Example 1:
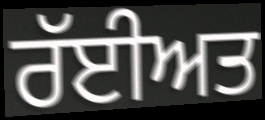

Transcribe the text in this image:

ਰੱਈਅਤ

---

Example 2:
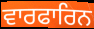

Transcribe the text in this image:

ਵਾਰਫਾਰਿਨ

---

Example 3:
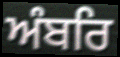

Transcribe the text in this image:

ਅੰਬਰਿ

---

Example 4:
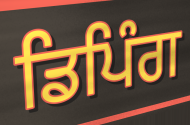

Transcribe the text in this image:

ਡਿਪਿੰਗ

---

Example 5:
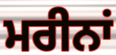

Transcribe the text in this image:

ਮਰੀਨਾਂ